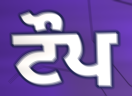
ਟੌਪ